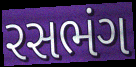
રસભંગ